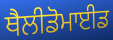
ਥੈਲੀਡੋਮਾਈਡ